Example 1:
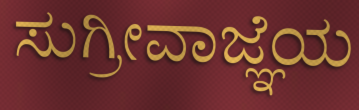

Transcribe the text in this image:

ಸುಗ್ರೀವಾಜ್ಞೆಯ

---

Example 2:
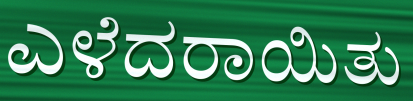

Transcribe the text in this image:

ಎಳೆದರಾಯಿತು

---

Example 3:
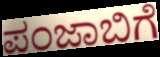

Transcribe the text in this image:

ಪಂಜಾಬಿಗೆ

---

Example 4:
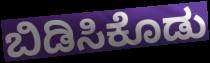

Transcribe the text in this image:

ಬಿಡಿಸಿಕೊಡು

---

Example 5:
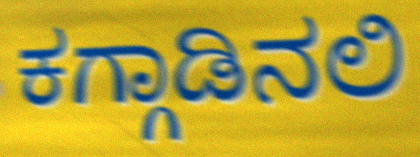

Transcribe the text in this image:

ಕಗ್ಗಾಡಿನಲಿ